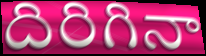
దిరిగినా